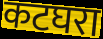
कटघरा